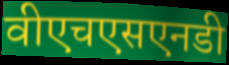
वीएचएसएनडी